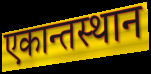
एकान्तस्थान